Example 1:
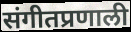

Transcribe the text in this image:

संगीतप्रणाली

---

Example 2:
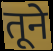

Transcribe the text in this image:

तूने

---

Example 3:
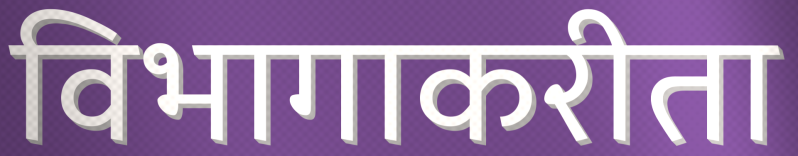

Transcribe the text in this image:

विभागाकरीता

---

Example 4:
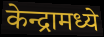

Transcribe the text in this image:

केन्द्रामध्ये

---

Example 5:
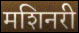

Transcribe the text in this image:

मशिनरी